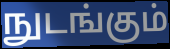
நுடங்கும்